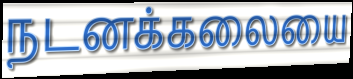
நடனக்கலையை